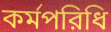
কর্মপরিধি